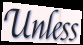
Unless